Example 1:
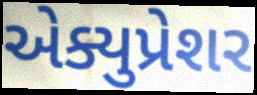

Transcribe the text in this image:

એક્યુપ્રેશર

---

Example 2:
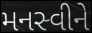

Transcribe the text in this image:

મનસ્વીને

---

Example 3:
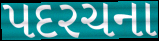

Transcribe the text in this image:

પદરચના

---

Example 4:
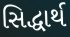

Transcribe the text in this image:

સિદ્ધાર્થ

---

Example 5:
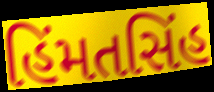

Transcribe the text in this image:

હિંમતસિંહ